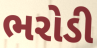
ભરોડી